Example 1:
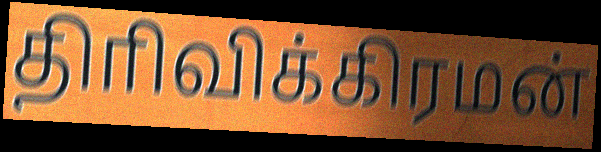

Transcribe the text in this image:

திரிவிக்கிரமன்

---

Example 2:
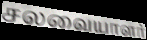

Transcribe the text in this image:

சலவையாளர்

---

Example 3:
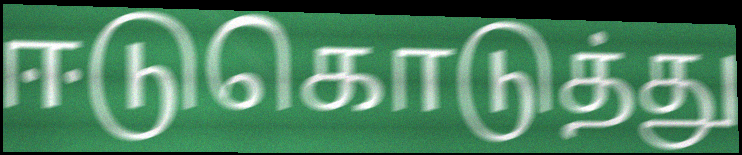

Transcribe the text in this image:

ஈடுகொடுத்து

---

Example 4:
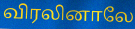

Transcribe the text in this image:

விரலினாலே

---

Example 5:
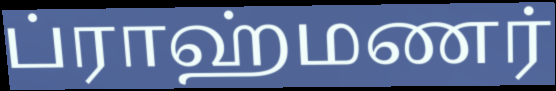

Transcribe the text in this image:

ப்ராஹ்மணர்